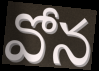
వోన